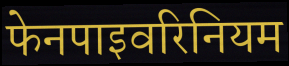
फेनपाइवरिनियम